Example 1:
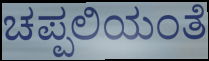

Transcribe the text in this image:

ಚಪ್ಪಲಿಯಂತೆ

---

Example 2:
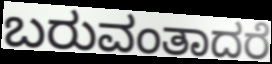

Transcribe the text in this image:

ಬರುವಂತಾದರೆ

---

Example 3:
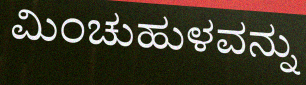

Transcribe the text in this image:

ಮಿಂಚುಹುಳವನ್ನು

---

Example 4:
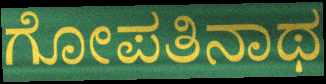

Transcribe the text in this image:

ಗೋಪತಿನಾಥ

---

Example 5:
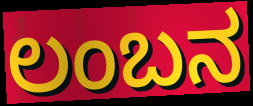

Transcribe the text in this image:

ಲಂಬನ